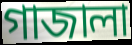
গাজালা